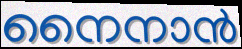
നൈനാൻ